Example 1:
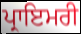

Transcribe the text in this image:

ਪ੍ਰਾਇਮਰੀ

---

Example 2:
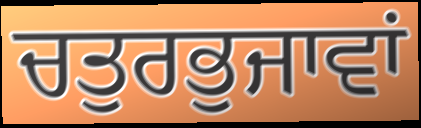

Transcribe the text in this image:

ਚਤੁਰਭੁਜਾਵਾਂ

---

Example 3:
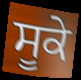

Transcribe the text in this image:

ਸੂਕੇ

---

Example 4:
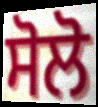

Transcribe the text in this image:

ਸੋਲੋ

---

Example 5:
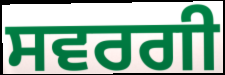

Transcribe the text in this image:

ਸਵਰਗੀ